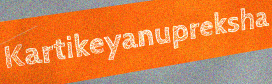
Kartikeyanupreksha